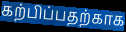
கற்பிப்பதற்காக